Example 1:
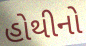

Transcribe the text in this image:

હોથીનો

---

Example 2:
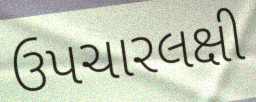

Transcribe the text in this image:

ઉપચારલક્ષી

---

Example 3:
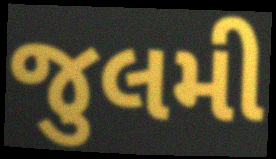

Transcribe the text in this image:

જુલમી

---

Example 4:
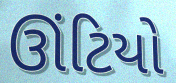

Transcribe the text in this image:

ઊંટિયો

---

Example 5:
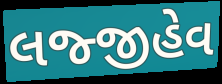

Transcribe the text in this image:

લજ્જીહેવ